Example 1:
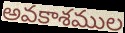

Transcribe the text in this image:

అవకాశముల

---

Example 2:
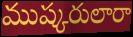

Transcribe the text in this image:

ముష్కరులారా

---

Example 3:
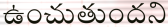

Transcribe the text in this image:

ఉంచుతుందని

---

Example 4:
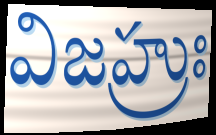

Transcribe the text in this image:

విజహ్రుః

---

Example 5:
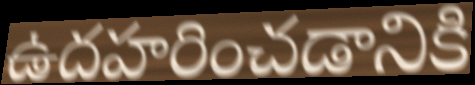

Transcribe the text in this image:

ఉదహరించడానికి